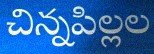
చిన్నపిల్లల